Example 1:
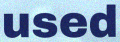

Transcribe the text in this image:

used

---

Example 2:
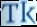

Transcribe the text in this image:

Tk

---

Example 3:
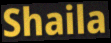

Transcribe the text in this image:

Shaila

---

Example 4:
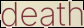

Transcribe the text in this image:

death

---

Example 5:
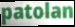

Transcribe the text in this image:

patolan